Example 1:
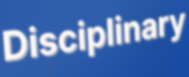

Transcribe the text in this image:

Disciplinary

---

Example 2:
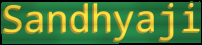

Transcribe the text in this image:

Sandhyaji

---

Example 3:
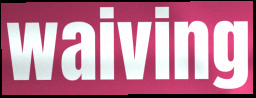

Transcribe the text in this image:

waiving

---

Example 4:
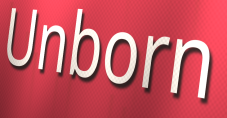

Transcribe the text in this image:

Unborn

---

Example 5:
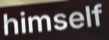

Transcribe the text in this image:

himself